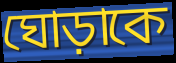
ঘোড়াকে